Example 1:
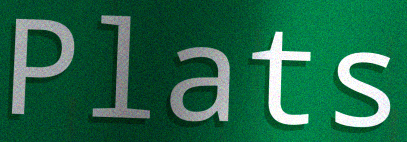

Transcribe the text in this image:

Plats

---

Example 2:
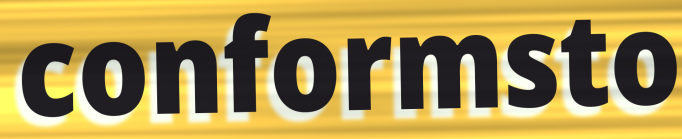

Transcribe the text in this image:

conformsto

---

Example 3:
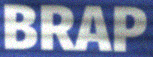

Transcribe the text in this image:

BRAP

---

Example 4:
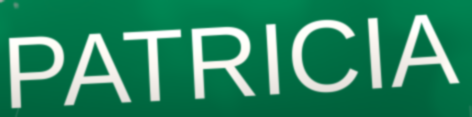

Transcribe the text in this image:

PATRICIA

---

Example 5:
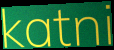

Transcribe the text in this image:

katni